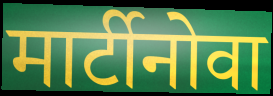
मार्टीनोवा